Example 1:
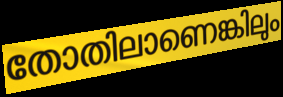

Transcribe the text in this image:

തോതിലാണെങ്കിലും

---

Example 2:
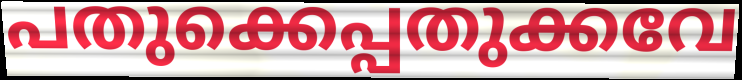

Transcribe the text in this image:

പതുക്കെപ്പതുക്കവേ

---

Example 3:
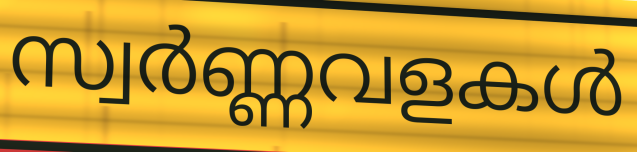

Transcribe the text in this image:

സ്വർണ്ണവളകൾ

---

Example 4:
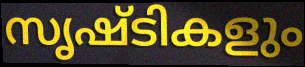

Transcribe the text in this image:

സൃഷ്ടികളും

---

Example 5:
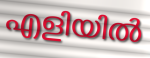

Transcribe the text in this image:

എളിയിൽ